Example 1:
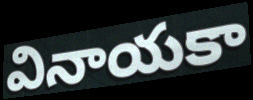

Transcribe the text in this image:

వినాయకా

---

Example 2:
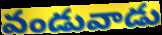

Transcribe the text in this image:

వండువాడు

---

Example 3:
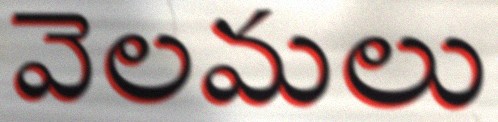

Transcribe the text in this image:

వెలమలు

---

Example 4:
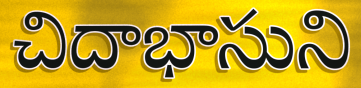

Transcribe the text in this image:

చిదాభాసుని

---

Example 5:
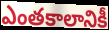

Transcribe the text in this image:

ఎంతకాలానికీ